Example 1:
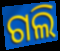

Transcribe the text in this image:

ଗଲି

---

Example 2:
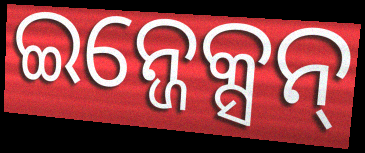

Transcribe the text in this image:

ଇନ୍ଜେକ୍ସନ୍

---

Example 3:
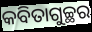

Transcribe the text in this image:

କବିତାଗୁଚ୍ଛର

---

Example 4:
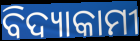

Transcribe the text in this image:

ବିଦ୍ୟାକାମୀ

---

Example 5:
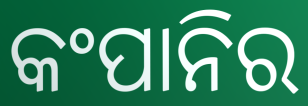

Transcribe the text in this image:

କଂପାନିର